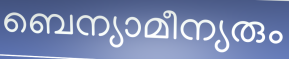
ബെന്യാമീന്യരും